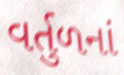
વર્તુળનાં